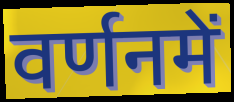
वर्णनमें